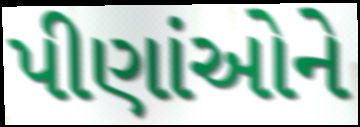
પીણાંઓને